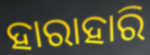
ହାରାହାରି